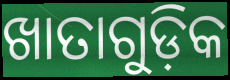
ଖାତାଗୁଡ଼ିକ